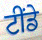
ਟੀਂਡੇ